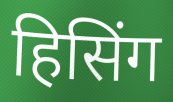
हिसिंग